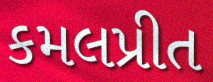
કમલપ્રીત